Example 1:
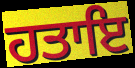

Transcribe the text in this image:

ਹਤਾਇ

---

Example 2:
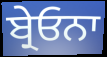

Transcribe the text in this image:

ਬ੍ਰੇਓਨਾ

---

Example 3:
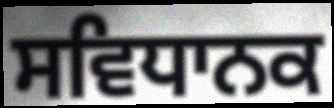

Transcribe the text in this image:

ਸਵਿਧਾਨਕ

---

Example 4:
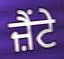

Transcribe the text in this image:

ਜ਼ੈਂਟੇ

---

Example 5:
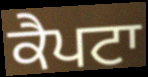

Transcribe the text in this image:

ਕੈਪਟਾ